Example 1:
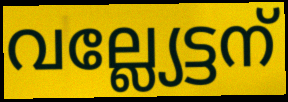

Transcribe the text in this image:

വല്ല്യേട്ടന്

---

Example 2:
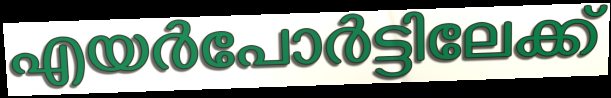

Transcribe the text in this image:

എയർപോർട്ടിലേക്ക്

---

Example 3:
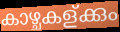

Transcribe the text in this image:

കാഴ്ചകള്ക്കും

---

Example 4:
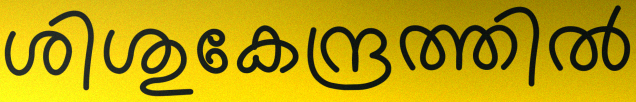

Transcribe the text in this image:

ശിശുകേന്ദ്രത്തിൽ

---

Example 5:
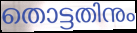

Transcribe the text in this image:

തൊട്ടതിനും